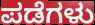
ಪಡೆಗಳು